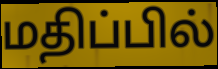
மதிப்பில்